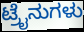
ಟ್ರೈನುಗಳು